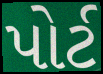
પોર્ટ